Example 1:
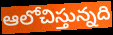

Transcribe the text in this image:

ఆలోచిస్తున్నది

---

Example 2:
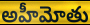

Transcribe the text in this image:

అహీమోతు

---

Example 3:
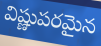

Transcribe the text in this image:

విష్ణుపరమైన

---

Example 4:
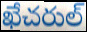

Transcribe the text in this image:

ఖేచరుల్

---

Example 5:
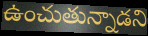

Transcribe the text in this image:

ఉంచుతున్నాడని